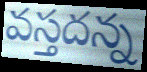
వస్తదన్న